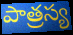
పాత్రస్య